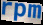
rpm